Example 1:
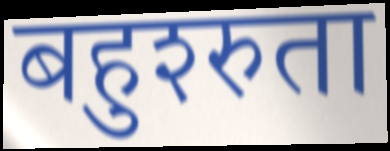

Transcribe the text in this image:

बहुश्रुता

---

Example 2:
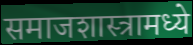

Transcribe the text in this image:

समाजशास्त्रामध्ये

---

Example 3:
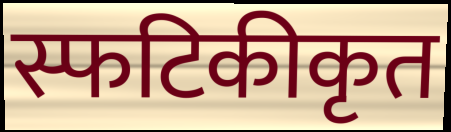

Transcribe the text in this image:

स्फटिकीकृत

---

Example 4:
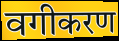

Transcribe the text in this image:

वगीकरण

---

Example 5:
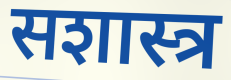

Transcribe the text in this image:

सशास्त्र